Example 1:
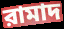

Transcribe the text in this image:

রামাদ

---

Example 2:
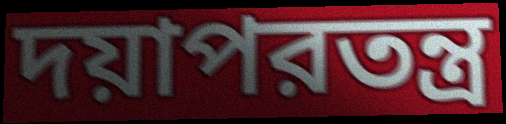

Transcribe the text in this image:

দয়াপরতন্ত্র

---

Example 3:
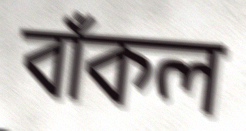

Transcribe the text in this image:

বাঁকল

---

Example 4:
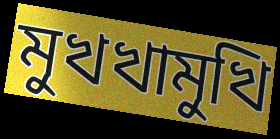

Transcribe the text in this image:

মুখখামুখি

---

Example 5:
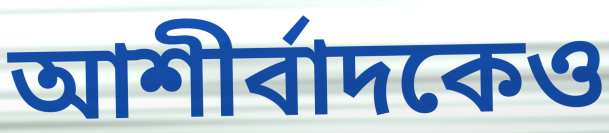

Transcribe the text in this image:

আশীর্বাদকেও